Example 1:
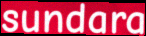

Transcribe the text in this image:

sundara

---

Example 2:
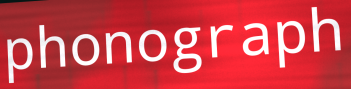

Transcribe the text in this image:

phonograph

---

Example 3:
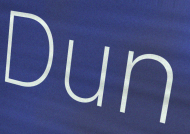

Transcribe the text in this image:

Dun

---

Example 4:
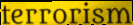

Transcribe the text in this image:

terrorism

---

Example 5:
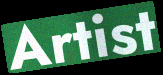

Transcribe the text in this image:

Artist